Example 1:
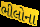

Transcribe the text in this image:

ભીલોના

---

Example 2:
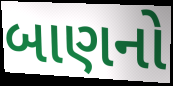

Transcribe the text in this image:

બાણનો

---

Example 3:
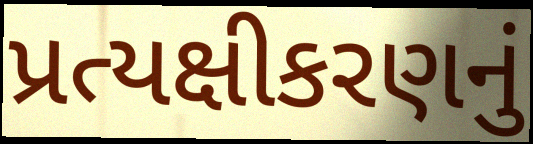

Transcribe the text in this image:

પ્રત્યક્ષીકરણનું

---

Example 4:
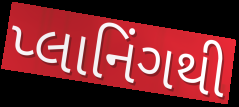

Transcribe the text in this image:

પ્લાનિંગથી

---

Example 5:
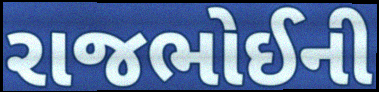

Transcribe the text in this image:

રાજભોઈની